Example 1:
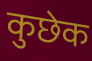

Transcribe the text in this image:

कुछेक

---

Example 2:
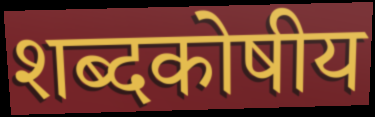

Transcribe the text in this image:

शब्दकोषीय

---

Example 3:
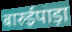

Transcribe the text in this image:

बारुईपाड़ा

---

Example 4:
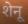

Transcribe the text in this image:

शेनू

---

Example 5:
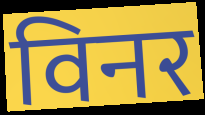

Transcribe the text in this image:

विनर